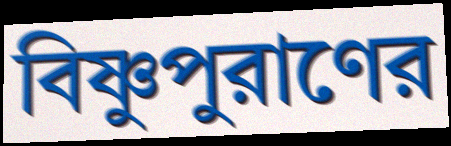
বিষ্ণুপুরাণের